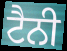
ਟੈਨੀ